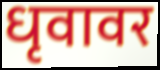
धृवावर